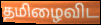
தமிழைவிட